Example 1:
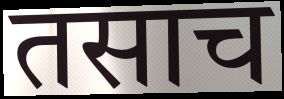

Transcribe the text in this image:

तसाच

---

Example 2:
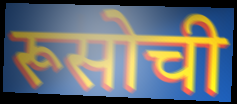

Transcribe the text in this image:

रूसोची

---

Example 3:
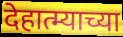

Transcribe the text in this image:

देहात्म्याच्या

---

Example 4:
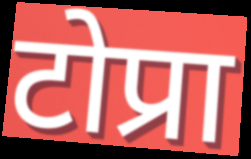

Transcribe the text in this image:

टोप्रा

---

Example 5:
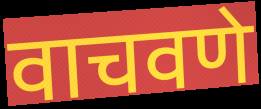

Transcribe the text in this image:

वाचवणे